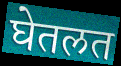
घेतलत